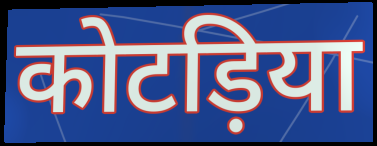
कोटड़िया